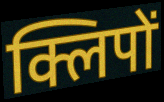
क्लिपों